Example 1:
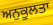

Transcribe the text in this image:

ਅਨੁਕੂਲਤਾ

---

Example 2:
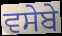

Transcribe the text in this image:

ਵਸੇਬੇ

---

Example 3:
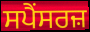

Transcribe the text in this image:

ਸਪੈਂਸਰਜ਼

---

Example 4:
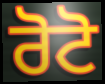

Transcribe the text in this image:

ਰੋਟੋ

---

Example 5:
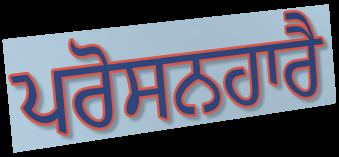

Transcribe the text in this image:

ਪਰੋਸਨਹਾਰੈ